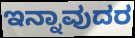
ಇನ್ನಾವುದರ